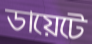
ডায়েটে